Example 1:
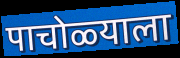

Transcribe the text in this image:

पाचोळ्याला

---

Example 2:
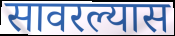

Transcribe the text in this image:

सावरल्यास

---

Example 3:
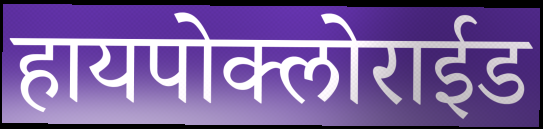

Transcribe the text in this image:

हायपोक्लोराईड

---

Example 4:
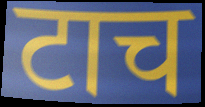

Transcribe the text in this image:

टाच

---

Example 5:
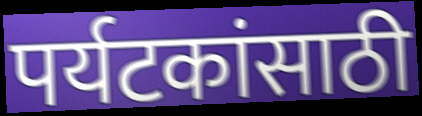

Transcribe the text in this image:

पर्यटकांसाठी